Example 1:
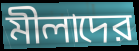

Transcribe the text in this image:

মীলাদের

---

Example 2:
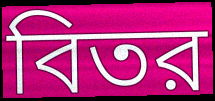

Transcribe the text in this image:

বিতর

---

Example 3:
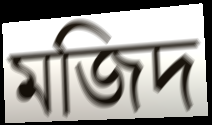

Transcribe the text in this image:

মজিদ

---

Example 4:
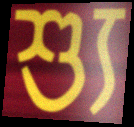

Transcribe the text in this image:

শ্যু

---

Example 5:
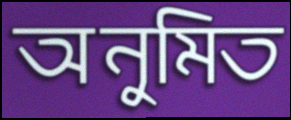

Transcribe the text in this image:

অনুমিত